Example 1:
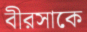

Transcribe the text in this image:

বীরসাকে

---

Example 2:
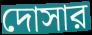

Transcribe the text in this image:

দোসার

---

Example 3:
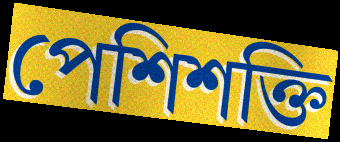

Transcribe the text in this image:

পেশিশক্তি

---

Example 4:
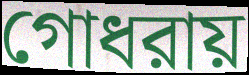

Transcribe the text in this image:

গোধরায়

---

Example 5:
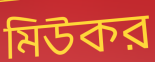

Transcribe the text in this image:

মিউকর